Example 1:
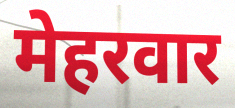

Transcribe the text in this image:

मेहरवार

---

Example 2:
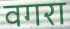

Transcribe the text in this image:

वगरा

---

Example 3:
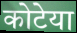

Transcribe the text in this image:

कोटेया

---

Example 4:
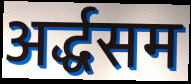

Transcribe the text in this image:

अर्द्धसम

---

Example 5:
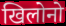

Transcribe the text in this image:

खिलोनो